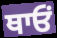
ਥਾਓਂ